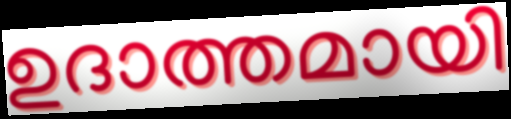
ഉദാത്തമായി